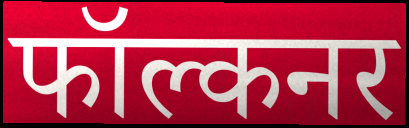
फॉल्कनर